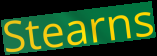
Stearns